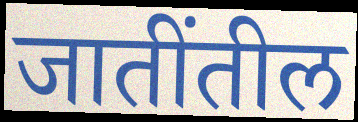
जातींतील